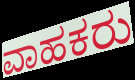
ವಾಹಕರು